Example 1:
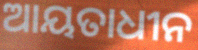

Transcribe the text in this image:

ଆୟତାଧୀନ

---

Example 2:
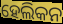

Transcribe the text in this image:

ହେଲିକନ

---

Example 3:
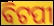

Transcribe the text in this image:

ବିଟପୀ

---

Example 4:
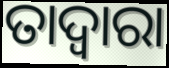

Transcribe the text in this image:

ତାଦ୍ଵାରା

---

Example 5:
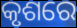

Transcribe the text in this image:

କୃଶରେ